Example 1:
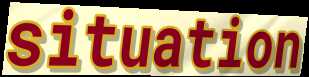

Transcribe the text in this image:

situation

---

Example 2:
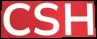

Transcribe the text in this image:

CSH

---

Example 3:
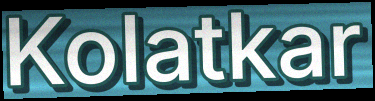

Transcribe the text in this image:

Kolatkar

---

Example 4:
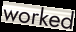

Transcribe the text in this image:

worked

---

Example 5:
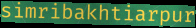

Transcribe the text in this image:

simribakhtiarpur